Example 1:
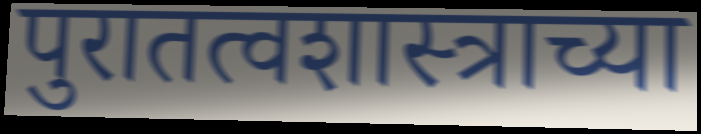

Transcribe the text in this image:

पुरातत्वशास्त्राच्या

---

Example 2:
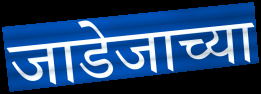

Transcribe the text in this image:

जाडेजाच्या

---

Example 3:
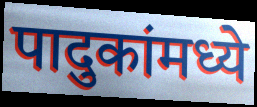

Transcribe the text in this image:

पादुकांमध्ये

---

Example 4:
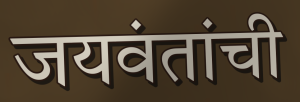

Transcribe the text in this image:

जयवंतांची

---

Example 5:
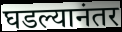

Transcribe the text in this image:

घडल्यानंतर